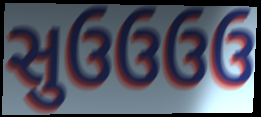
સુઉઉઉઉ